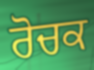
ਰੋਚਕ